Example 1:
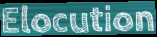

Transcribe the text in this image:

Elocution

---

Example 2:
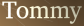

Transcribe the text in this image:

Tommy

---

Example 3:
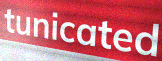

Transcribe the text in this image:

tunicated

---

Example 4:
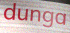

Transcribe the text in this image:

dunga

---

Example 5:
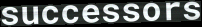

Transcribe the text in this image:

successors